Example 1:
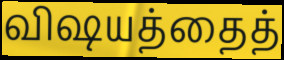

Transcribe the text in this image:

விஷயத்தைத்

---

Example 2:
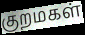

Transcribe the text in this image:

குறமகள்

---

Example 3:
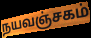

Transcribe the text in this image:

நயவஞ்சகம்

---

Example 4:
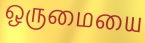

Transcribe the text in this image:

ஒருமையை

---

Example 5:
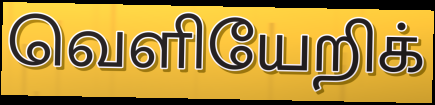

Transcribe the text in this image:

வெளியேறிக்